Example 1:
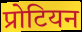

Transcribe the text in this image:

प्रोटियन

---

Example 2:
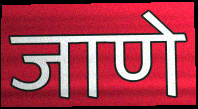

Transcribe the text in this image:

जाणे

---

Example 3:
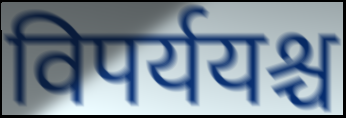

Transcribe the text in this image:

विपर्ययश्च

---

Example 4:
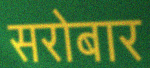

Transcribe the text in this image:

सरोबार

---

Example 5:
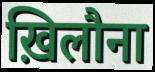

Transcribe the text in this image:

ख़िलौना